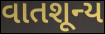
વાતશૂન્ય